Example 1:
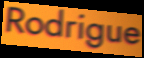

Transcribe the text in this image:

Rodrigue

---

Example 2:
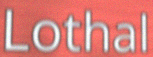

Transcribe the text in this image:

Lothal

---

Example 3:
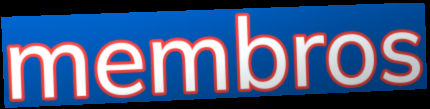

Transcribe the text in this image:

membros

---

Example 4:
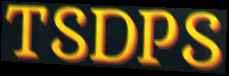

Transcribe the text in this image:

TSDPS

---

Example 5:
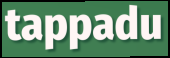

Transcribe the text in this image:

tappadu